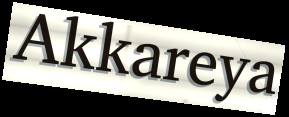
Akkareya